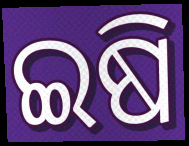
ଇଷି